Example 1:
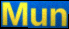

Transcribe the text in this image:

Mun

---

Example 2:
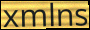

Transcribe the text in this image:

xmlns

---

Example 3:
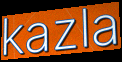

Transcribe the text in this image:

kazla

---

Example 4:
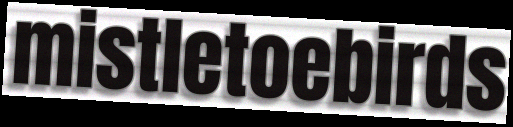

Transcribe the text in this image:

mistletoebirds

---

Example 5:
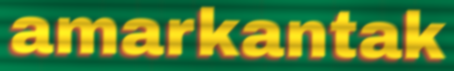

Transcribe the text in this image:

amarkantak